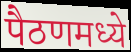
पैठणमध्ये